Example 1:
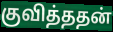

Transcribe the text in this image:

குவித்ததன்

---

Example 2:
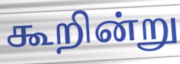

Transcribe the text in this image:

கூறின்று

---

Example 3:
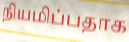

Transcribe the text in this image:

நியமிப்பதாக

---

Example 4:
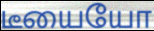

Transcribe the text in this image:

டீயையோ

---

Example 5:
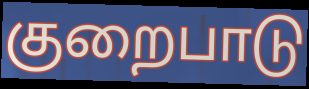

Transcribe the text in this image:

குறைபாடு